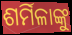
ଶର୍ମିଳାଙ୍କୁ